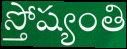
స్తోష్యంతి